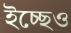
ইচ্ছেও